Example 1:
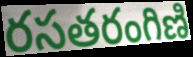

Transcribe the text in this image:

రసతరంగిణి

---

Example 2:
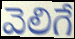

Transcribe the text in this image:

వెలిగే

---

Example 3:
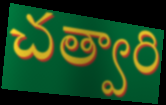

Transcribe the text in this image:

చత్వారి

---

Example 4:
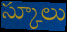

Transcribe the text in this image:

స్కూలు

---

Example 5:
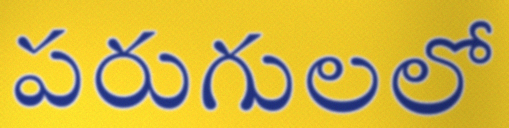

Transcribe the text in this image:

పరుగులలో